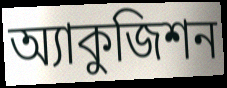
অ্যাকুজিশন